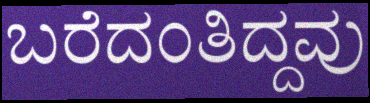
ಬರೆದಂತಿದ್ದವು